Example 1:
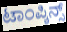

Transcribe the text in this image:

ಟಾಂಪ್ಕಿನ್ಸ್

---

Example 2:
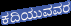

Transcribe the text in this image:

ಕದಿಯುವವರ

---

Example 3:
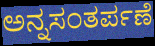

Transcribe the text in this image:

ಅನ್ನಸಂತರ್ಪಣೆ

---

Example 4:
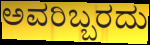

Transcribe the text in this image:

ಅವರಿಬ್ಬರದು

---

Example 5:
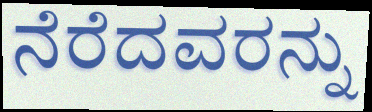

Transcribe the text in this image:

ನೆರೆದವರನ್ನು